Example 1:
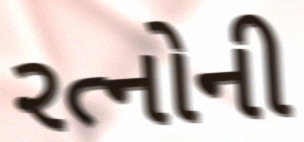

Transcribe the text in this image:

રત્નોની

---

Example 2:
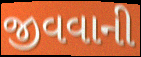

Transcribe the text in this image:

જીવવાની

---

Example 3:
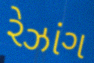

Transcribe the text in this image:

રેઝાંગ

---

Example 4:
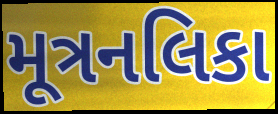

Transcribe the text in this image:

મૂત્રનલિકા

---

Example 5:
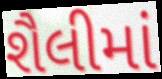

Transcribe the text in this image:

શૈલીમાં